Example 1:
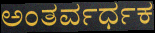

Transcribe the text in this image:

ಅಂತರ್ವರ್ಧಕ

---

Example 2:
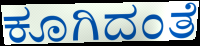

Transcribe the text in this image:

ಕೂಗಿದಂತೆ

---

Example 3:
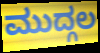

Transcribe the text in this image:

ಮುದ್ಗಲ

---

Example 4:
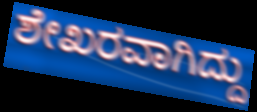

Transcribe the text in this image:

ಶೇಖರವಾಗಿದ್ದು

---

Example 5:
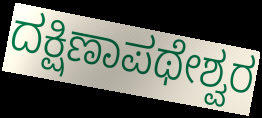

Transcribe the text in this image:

ದಕ್ಷಿಣಾಪಥೇಶ್ವರ